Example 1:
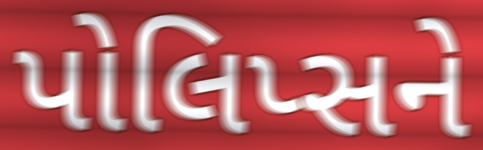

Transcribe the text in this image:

પોલિપ્સને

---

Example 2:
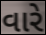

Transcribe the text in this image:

વારે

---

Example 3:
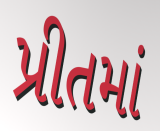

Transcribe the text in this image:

પ્રીતમાં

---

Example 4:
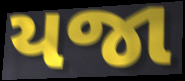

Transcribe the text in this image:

યજા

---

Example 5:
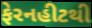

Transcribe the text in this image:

ફેરનહીટથી